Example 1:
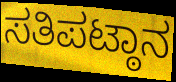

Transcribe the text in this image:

ಸತಿಪಟ್ಠಾನ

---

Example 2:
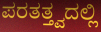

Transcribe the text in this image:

ಪರತತ್ತ್ವದಲ್ಲಿ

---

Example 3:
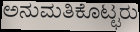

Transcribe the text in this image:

ಅನುಮತಿಕೊಟ್ಟರು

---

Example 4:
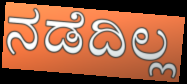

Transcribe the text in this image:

ನಡೆದಿಲ್ಲ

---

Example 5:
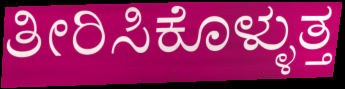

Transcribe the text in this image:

ತೀರಿಸಿಕೊಳ್ಳುತ್ತ